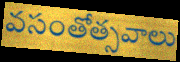
వసంతోత్సవాలు